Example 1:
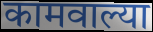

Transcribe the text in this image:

कामवाल्या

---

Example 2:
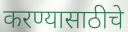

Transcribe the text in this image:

करण्यासाठीचे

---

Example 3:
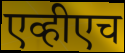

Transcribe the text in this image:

एव्हीएच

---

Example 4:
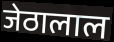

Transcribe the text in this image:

जेठालाल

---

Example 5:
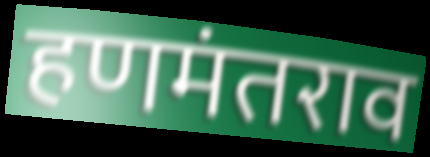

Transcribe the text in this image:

हणमंतराव